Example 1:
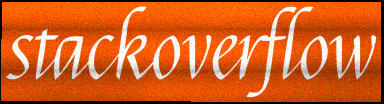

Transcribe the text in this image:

stackoverflow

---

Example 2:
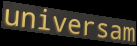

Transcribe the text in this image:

universam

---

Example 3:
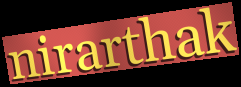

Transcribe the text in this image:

nirarthak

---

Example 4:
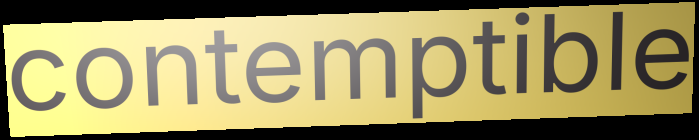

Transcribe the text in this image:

contemptible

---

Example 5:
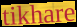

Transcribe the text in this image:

tikhare